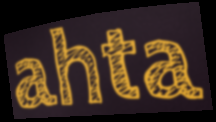
ahta